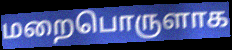
மறைபொருளாக